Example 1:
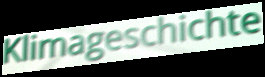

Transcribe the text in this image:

Klimageschichte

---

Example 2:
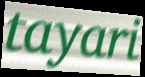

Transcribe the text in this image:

tayari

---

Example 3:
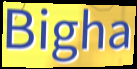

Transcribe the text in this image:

Bigha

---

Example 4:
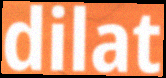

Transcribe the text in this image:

dilat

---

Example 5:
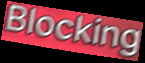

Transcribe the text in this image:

Blocking